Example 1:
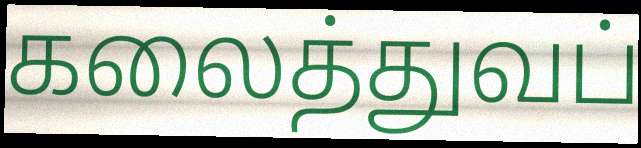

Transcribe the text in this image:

கலைத்துவப்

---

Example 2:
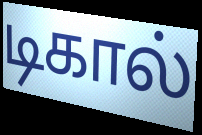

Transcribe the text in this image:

டிகால்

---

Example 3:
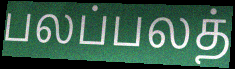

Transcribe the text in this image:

பலப்பலத்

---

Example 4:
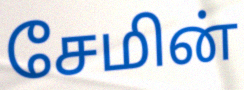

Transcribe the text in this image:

சேமின்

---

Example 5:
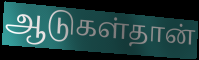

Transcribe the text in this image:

ஆடுகள்தான்